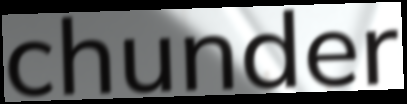
chunder